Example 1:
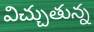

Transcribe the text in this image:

విచ్చుతున్న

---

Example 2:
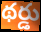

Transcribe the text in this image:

థర్డు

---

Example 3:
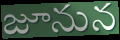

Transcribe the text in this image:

జూనున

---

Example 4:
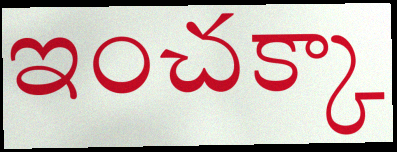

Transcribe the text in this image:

ఇంచక్కా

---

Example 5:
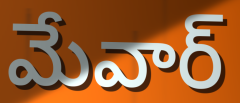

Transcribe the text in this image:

మేవార్